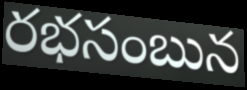
రభసంబున